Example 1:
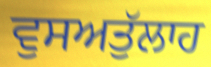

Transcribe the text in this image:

ਵੁਸਅਤੁੱਲਾਹ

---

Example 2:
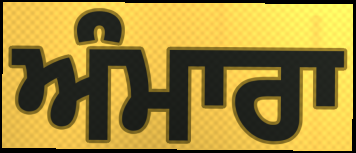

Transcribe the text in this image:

ਅੰਮਾਰਾ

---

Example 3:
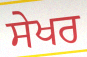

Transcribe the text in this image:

ਸੇਖਰ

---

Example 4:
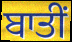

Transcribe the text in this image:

ਬਾਤੀਂ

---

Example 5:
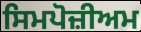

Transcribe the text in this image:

ਸਿਮਪੋਜ਼ੀਅਮ